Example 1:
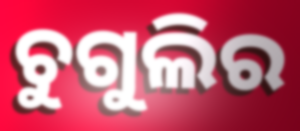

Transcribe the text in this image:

ଚୁଗୁଲିର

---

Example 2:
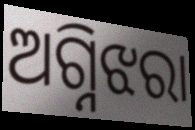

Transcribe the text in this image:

ଅଗ୍ନିଝରା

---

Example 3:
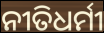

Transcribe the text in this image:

ନୀତିଧର୍ମୀ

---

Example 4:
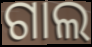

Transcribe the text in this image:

ଗାଲ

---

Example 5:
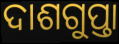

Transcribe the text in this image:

ଦାଶଗୁପ୍ତା